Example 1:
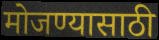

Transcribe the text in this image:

मोजण्यासाठी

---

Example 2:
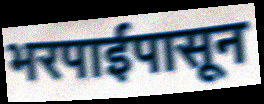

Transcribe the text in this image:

भरपाईपासून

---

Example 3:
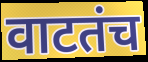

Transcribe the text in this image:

वाटतंच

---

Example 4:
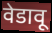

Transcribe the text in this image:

वेडावू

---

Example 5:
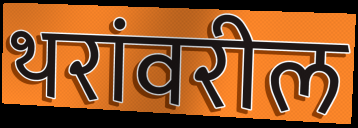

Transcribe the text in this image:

थरांवरील